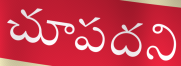
చూపదని